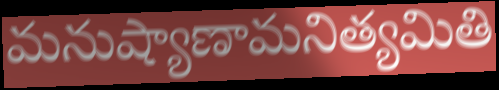
మనుష్యాణామనిత్యమితి